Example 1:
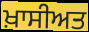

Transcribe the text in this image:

ਖ਼ਾਸੀਅਤ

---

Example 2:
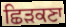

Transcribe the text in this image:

ਛਿੜਕਣਾ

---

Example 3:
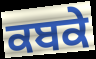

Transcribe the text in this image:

ਕਬਕੇ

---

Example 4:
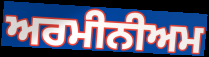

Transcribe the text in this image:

ਅਰਮੀਨੀਅਮ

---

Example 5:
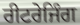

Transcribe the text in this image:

ਰੀਟਰੇਜਿੰਗ